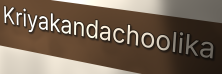
Kriyakandachoolika